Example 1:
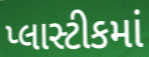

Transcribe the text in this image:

પ્લાસ્ટીકમાં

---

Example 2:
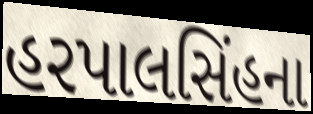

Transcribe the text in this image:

હરપાલસિંહના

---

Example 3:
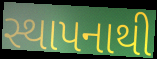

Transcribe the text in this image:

સ્થાપનાથી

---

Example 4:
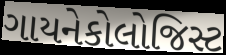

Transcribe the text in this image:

ગાયનેકોલોજિસ્ટ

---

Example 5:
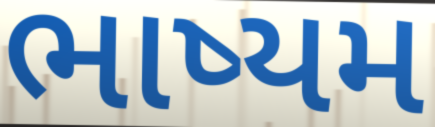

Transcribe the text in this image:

ભાષ્યમ